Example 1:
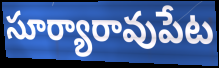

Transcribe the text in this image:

సూర్యారావుపేట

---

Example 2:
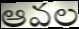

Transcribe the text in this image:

ఆవల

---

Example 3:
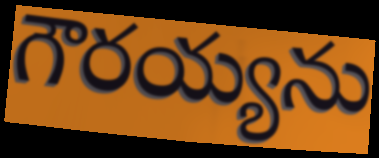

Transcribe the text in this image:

గౌరయ్యను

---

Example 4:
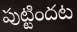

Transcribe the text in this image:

పుట్టిందట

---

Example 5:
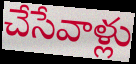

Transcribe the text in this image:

చేసేవాళ్లు